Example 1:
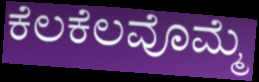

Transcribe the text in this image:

ಕೆಲಕೆಲವೊಮ್ಮೆ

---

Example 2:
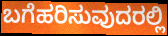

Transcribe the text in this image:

ಬಗೆಹರಿಸುವುದರಲ್ಲಿ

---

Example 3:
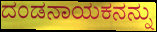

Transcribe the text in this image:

ದಂಡನಾಯಕನನ್ನು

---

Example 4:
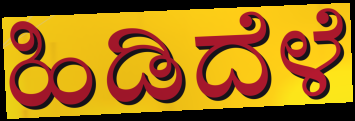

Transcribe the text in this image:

ಹಿಡಿದೆಳೆ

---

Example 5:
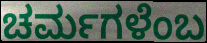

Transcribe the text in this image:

ಚರ್ಮಗಳೆಂಬ